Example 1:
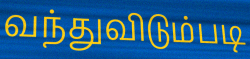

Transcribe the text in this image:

வந்துவிடும்படி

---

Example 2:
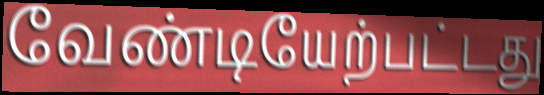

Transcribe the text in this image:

வேண்டியேற்பட்டது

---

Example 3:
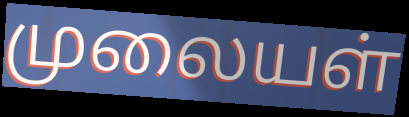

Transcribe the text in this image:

முலையள்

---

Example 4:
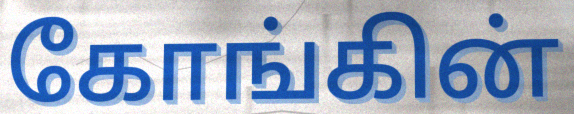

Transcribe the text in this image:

கோங்கின்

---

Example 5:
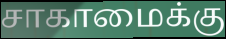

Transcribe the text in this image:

சாகாமைக்கு